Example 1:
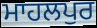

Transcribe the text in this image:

ਮਾਹਲਪੁਰ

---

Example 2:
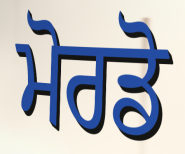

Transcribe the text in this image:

ਮੋਰਡੋ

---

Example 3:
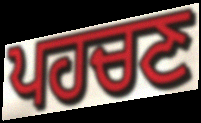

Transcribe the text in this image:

ਪਹਚਣ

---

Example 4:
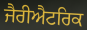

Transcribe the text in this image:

ਜੈਰੀਐਟਰਿਕ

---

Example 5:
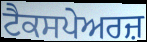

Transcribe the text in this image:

ਟੈਕਸਪੇਅਰਜ਼